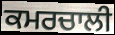
ਕਮਰਚਾਲੀ